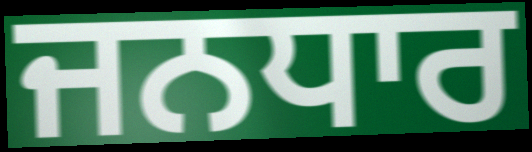
ਜਨਧਾਰ